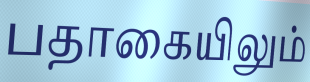
பதாகையிலும்